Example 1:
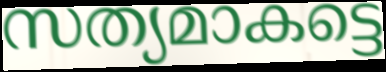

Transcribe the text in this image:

സത്യമാകട്ടെ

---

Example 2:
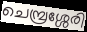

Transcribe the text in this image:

ചെമ്പ്രശ്ശേരി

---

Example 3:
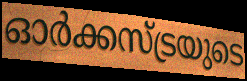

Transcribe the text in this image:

ഓർക്കസ്ട്രയുടെ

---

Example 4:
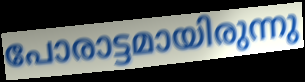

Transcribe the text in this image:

പോരാട്ടമായിരുന്നു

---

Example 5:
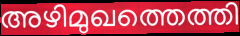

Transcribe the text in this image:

അഴിമുഖത്തെത്തി